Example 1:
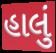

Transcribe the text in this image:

હાલું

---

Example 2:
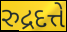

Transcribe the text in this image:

રુદ્રદત્તે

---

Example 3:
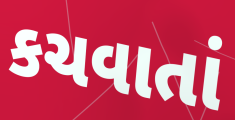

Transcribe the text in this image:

કચવાતાં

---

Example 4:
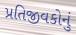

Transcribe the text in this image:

પ્રતિજીવકોનું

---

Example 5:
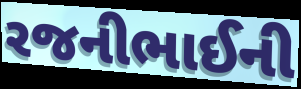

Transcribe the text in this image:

રજનીભાઈની